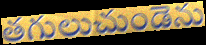
తగులుచుండెను